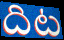
దిట